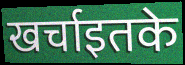
खर्चाइतके